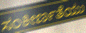
ಸಂಕೀರ್ಣತೆಯು